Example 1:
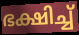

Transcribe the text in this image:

ഭക്ഷിച്ച്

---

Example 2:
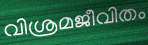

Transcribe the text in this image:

വിശ്രമജീവിതം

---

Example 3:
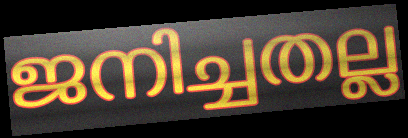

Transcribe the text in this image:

ജനിച്ചതല്ല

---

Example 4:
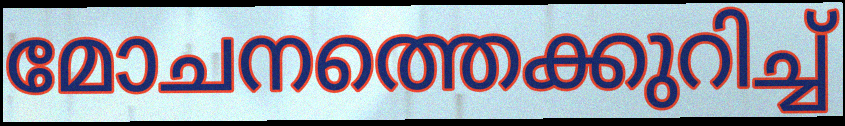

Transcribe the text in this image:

മോചനത്തെക്കുറിച്ച്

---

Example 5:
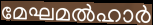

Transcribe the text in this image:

മേഘമൽഹാർ